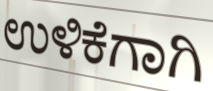
ಉಳಿಕೆಗಾಗಿ